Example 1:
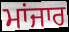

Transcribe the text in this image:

ਮਾਂਜਾਰ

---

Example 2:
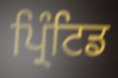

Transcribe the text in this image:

ਪ੍ਰਿੰਟਿਡ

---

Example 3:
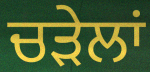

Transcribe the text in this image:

ਚੜੇਲਾਂ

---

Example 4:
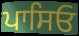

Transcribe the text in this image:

ਪਾਸਿਓ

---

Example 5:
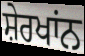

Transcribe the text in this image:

ਸ਼ੇਰਖਾਂਨ